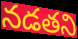
నడతని